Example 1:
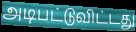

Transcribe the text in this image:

அடிபட்டுவிட்டது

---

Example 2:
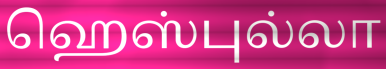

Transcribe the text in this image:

ஹெஸ்புல்லா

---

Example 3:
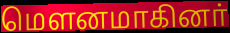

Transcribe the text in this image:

மௌனமாகினர்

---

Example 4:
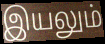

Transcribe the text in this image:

இயலும்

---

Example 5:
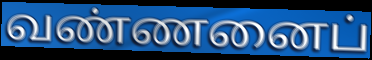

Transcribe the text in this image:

வண்ணனைப்